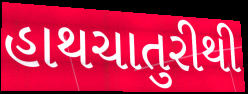
હાથચાતુરીથી